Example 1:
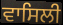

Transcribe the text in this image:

ਵਾਸਿਲੀ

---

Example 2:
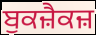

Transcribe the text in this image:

ਬੁਕਜ਼ੈਕਜ਼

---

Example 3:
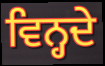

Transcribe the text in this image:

ਵਿਨ੍ਹਦੇ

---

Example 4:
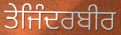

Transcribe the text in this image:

ਤੇਜਿੰਦਰਬੀਰ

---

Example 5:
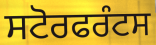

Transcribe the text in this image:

ਸਟੋਰਫਰੰਟਸ